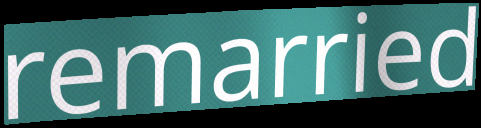
remarried